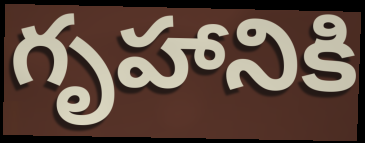
గృహానికి